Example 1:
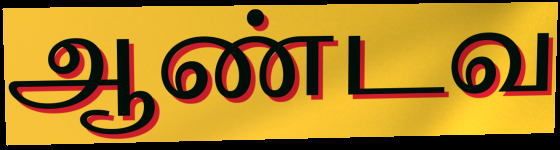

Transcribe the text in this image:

ஆண்டவ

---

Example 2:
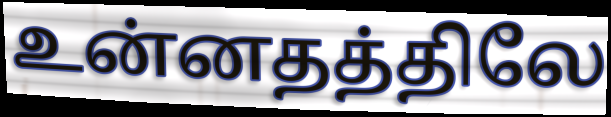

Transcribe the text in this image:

உன்னதத்திலே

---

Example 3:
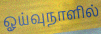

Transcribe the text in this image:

ஓய்வுநாளில்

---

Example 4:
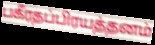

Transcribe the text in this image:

பகீரதப்பிரயத்தனம்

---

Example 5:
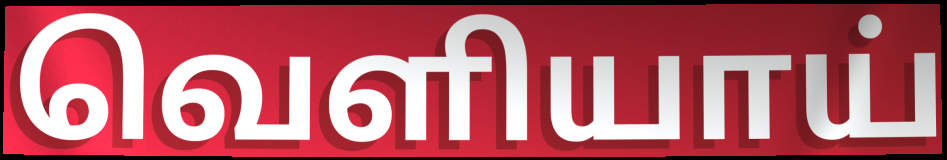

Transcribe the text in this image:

வெளியாய்